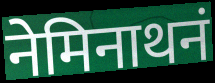
नेमिनाथनं